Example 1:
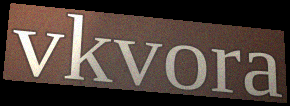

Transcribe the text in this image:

vkvora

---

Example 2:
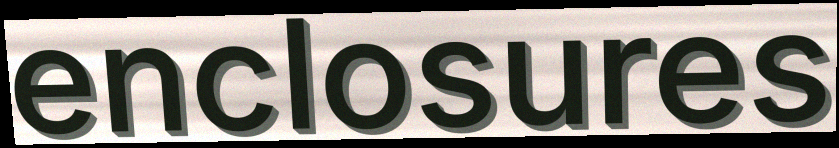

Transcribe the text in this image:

enclosures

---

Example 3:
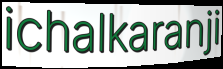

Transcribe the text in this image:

ichalkaranji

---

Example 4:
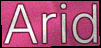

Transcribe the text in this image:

Arid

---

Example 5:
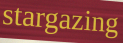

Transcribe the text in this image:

stargazing